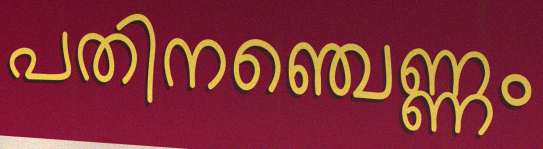
പതിനഞ്ചെണ്ണം